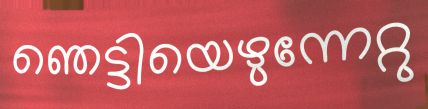
ഞെട്ടിയെഴുന്നേറ്റു